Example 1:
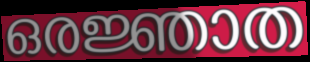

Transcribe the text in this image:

ഒരജ്ഞാത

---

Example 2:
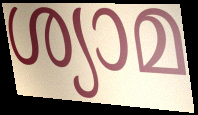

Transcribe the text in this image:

ശ്യാമ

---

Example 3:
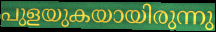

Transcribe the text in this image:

പുളയുകയായിരുന്നു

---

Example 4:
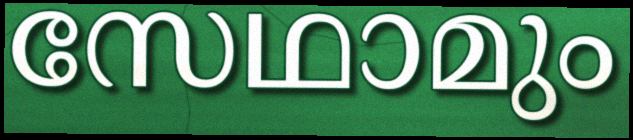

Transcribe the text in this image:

സേഥാമും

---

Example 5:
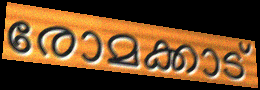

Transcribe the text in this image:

രോമക്കാട്